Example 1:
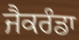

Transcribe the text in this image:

ਜੈਕਰੰਡਾ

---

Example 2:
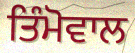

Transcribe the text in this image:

ਤਿੰਮੋਵਾਲ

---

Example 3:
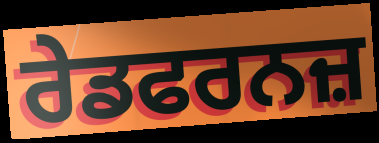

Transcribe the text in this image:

ਰੇਡਫਰਨਜ਼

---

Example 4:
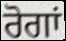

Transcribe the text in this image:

ਰੋਗਾਂ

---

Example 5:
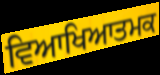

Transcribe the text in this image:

ਵਿਆਖਿਆਤਮਕ